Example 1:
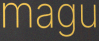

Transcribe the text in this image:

magu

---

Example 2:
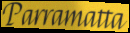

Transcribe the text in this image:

Parramatta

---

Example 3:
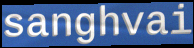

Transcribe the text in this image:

sanghvai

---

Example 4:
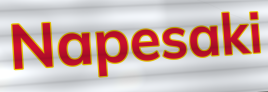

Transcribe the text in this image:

Napesaki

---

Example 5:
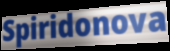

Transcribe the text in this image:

Spiridonova